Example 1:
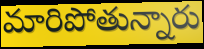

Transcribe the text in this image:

మారిపోతున్నారు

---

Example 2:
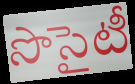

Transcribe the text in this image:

సొసైటీ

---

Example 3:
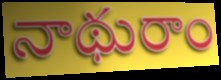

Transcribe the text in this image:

నాథురాం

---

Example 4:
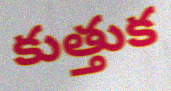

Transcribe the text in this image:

కుత్తుక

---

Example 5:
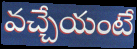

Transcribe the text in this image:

వచ్చేయంటే